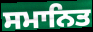
ਸਮਾਨਿਤ